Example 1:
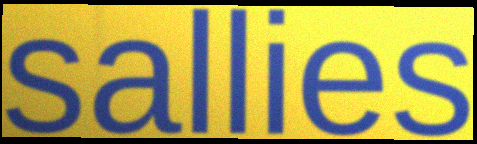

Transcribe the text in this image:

sallies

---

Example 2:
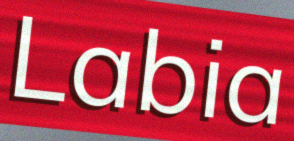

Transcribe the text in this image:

Labia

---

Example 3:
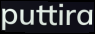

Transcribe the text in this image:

puttira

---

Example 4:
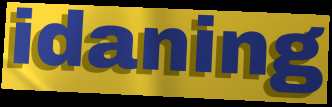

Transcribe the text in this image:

idaning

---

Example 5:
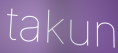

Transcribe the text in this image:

takun